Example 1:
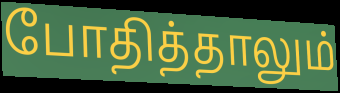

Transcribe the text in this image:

போதித்தாலும்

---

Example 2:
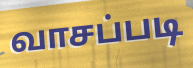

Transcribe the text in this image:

வாசப்படி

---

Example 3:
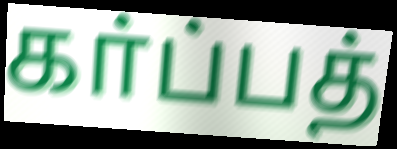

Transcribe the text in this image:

கர்ப்பத்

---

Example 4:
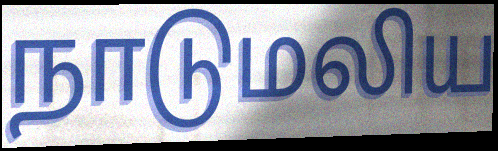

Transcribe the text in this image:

நாடுமலிய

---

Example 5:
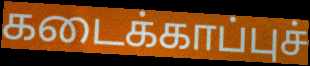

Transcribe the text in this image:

கடைக்காப்புச்